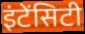
इंटेंसिटी